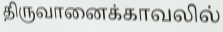
திருவானைக்காவலில்